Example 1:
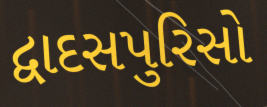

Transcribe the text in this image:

દ્વાદસપુરિસો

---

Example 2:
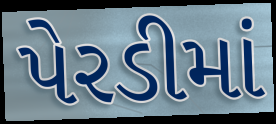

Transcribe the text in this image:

પેરડીમાં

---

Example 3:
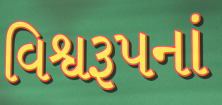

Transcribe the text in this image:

વિશ્વરૂપનાં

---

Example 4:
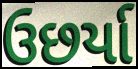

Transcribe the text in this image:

ઉછર્યા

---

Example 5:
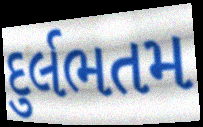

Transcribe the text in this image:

દુર્લભતમ